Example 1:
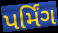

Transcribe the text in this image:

પર્મિંગ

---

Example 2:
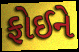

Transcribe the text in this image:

ફોઈને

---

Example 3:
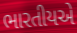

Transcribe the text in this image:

ભારતીયએ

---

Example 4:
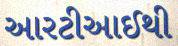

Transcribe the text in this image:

આરટીઆઈથી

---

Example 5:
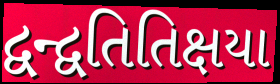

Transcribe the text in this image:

દ્વન્દ્વતિતિક્ષયા